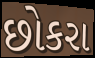
છોકરા